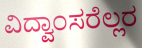
ವಿದ್ವಾಂಸರೆಲ್ಲರ